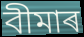
বীমাৰ